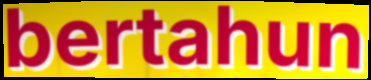
bertahun